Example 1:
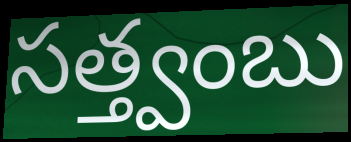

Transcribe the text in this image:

సత్త్వంబు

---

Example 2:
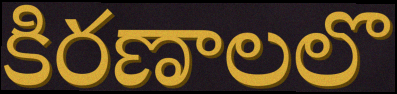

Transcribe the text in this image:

కిరణాలలొ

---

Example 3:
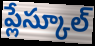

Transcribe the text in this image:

ప్లేస్కూల్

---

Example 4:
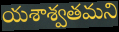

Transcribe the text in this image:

యశాశ్వతమని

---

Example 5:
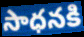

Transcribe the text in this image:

సాధనకి